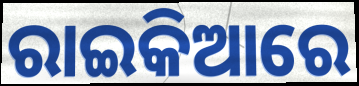
ରାଇକିଆରେ